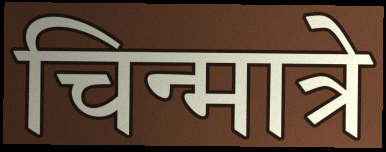
चिन्मात्रे